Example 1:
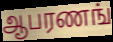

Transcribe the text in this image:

ஆபரணங்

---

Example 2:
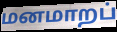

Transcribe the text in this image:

மனமாறப்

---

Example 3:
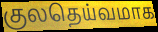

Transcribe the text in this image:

குலதெய்வமாக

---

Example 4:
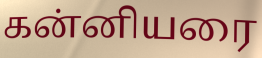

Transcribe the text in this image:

கன்னியரை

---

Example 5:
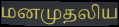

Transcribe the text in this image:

மனமுதலிய